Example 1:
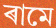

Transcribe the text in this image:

ৰামে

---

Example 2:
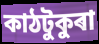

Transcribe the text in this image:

কাঠটুকুৰা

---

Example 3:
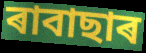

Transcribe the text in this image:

ৰাবাছাৰ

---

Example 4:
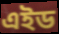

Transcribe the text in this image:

এইড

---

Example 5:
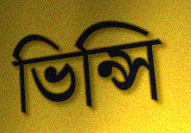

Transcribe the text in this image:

ভিন্সি